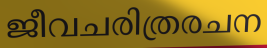
ജീവചരിത്രരചന